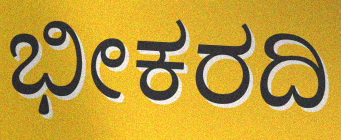
ಭೀಕರದಿ